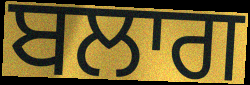
ਬਲਾਗ